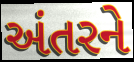
અંતરને